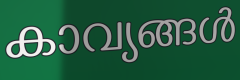
കാവ്യങ്ങൾ